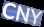
CNY